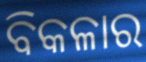
ବିକଳାର